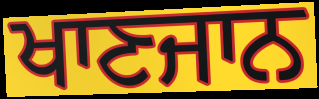
ਖਾਣਜਾਨ